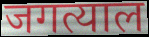
जगत्याल